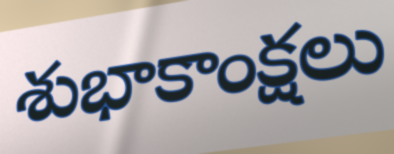
శుభాకాంక్షలు